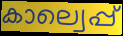
കാല്വെപ്പ്